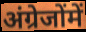
अंग्रेजोंमें